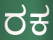
ರಕ